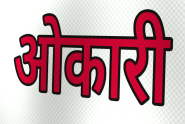
ओकारी